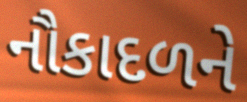
નૌકાદળને